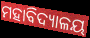
ମହାବିଦ୍ୟାଳୟ